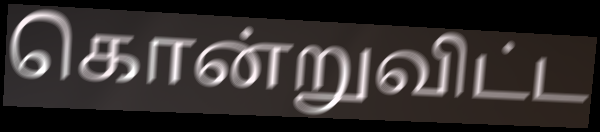
கொன்றுவிட்ட